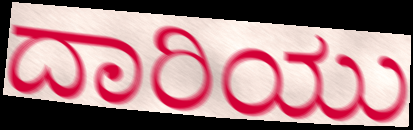
ದಾರಿಯು